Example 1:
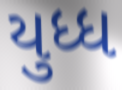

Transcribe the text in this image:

યુધ્ધ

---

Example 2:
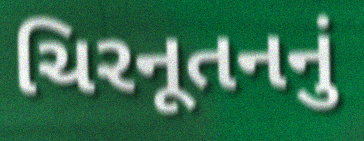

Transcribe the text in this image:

ચિરનૂતનનું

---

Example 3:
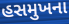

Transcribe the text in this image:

હસમુખના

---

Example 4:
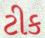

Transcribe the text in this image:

ટીક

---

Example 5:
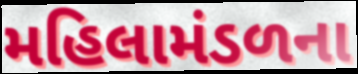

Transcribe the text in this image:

મહિલામંડળના